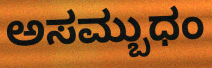
ಅಸಮ್ಬುಧಂ